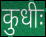
कुधीः